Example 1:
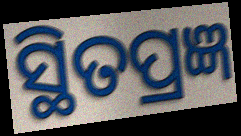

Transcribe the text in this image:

ସ୍ଥିତପ୍ରଜ୍ଞ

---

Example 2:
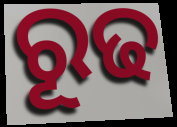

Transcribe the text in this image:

ରୂଢ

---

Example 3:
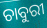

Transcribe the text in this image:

ଚାବୁରୀ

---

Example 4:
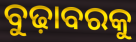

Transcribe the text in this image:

ବୁଢ଼ାବରକୁ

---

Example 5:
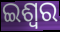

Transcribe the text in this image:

ଇଶ୍ବର